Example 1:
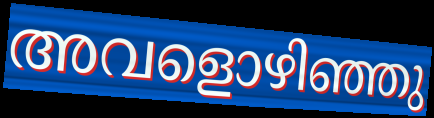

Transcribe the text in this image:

അവളൊഴിഞ്ഞു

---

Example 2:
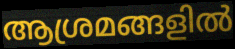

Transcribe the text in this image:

ആശ്രമങ്ങളിൽ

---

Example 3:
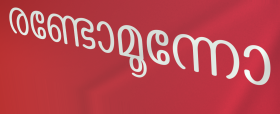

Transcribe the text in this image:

രണ്ടോമൂന്നോ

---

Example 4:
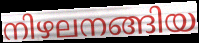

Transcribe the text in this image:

നിഴലനങ്ങിയ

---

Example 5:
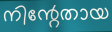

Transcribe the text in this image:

നിന്റേതായ